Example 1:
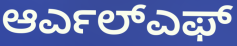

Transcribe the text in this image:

ಆರ್ಎಲ್ಎಫ್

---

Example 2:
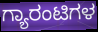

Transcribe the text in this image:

ಗ್ಯಾರಂಟಿಗಳ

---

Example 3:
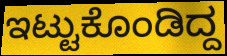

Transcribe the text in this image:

ಇಟ್ಟುಕೊಂಡಿದ್ದ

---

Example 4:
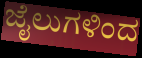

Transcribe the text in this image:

ಜೈಲುಗಳಿಂದ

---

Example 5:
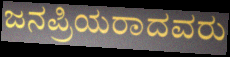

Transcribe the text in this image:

ಜನಪ್ರಿಯರಾದವರು